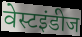
वेस्टइंडीज